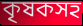
কৃষকসহ